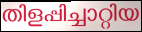
തിളപ്പിച്ചാറ്റിയ